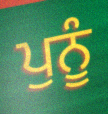
ਪੁਨੂੰ